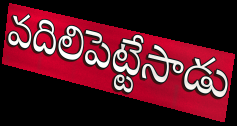
వదిలిపెట్టేసాడు